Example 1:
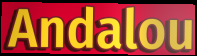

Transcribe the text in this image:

Andalou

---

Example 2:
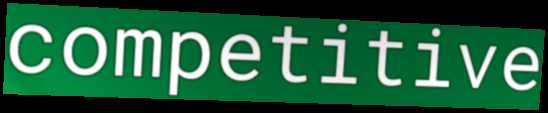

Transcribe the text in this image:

competitive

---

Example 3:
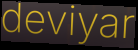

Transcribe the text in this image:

deviyar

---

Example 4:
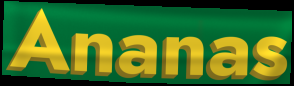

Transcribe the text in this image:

Ananas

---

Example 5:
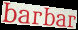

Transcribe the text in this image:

barbar